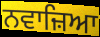
ਨਵਾਜ਼ਿਆ